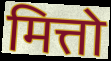
मित्तो